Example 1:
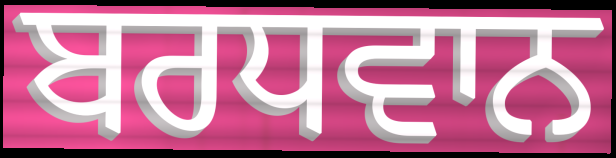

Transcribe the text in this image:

ਬਰਧਵਾਨ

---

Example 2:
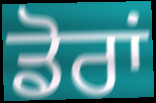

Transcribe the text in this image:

ਡੋਰਾਂ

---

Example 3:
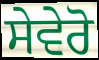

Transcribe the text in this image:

ਸੇਵੇਰੋ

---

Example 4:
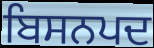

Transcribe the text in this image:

ਬਿਸਨਪਦ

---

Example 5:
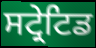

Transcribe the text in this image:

ਸਟ੍ਰੇਟਿਡ